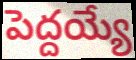
పెద్దయ్యే